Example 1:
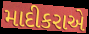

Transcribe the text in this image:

માદીકરાએ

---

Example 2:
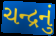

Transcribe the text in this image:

ચન્દ્રનું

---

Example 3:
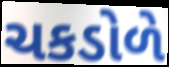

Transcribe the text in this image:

ચકડોળે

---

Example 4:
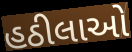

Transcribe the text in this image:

હઠીલાઓ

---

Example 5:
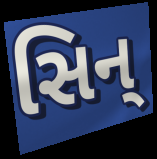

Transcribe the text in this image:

સિન્